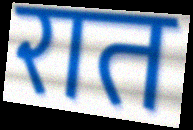
रात